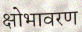
क्षोभावरण